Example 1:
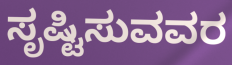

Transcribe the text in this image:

ಸೃಷ್ಟಿಸುವವರ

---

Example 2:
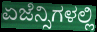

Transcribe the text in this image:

ಏಜೆನ್ಸಿಗಳಲ್ಲಿ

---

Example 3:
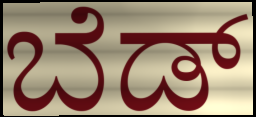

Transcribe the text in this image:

ಬೆಡ್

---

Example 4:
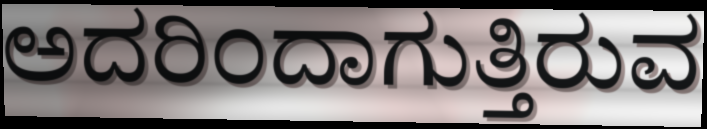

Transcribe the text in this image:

ಅದರಿಂದಾಗುತ್ತಿರುವ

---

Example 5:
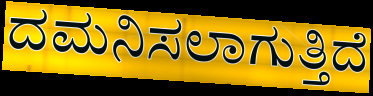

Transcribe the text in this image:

ದಮನಿಸಲಾಗುತ್ತಿದೆ